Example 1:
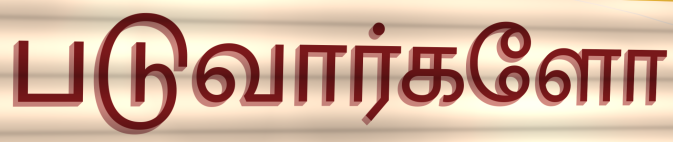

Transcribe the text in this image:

படுவார்களோ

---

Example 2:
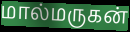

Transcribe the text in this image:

மால்மருகன்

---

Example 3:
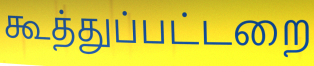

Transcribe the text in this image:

கூத்துப்பட்டறை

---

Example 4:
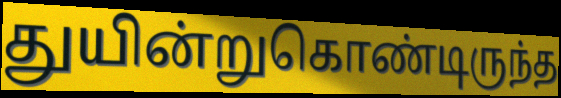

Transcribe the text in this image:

துயின்றுகொண்டிருந்த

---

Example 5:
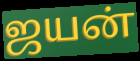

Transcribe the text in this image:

ஜயன்